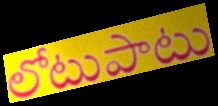
లోటుపాటు